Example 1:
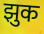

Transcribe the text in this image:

झुक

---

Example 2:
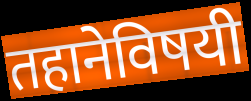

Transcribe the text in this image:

तहानेविषयी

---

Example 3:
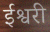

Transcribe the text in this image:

ईश्वरी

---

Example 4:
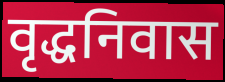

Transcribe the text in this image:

वृद्धनिवास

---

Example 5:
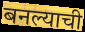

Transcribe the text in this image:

बनल्याची